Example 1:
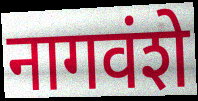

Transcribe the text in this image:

नागवंशे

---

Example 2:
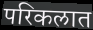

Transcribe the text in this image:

परिकलात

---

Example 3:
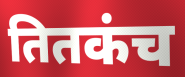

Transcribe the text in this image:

तितकंच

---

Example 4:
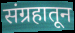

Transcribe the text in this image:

संग्रहातून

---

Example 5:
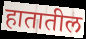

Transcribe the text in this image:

हातातील